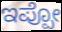
ಇಪ್ಪೋ